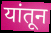
यांतून